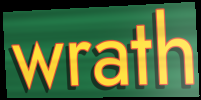
wrath